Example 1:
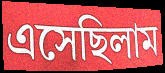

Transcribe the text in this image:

এসেছিলাম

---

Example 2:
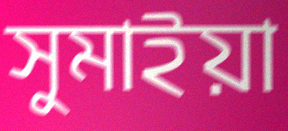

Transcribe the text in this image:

সুমাইয়া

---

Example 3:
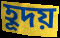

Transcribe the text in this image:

হূদয়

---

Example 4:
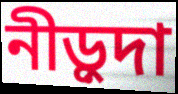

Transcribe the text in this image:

নীড়ুদা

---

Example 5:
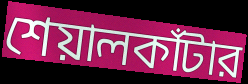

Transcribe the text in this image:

শেয়ালকাঁটার